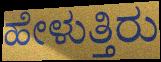
ಹೇಳುತ್ತಿರು